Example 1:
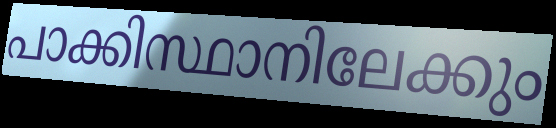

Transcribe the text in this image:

പാക്കിസ്ഥാനിലേക്കും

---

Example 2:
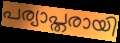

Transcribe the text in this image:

പര്യാപ്തരായി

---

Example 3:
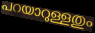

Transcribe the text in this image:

പറയാറുള്ളതും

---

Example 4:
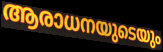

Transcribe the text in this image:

ആരാധനയുടെയും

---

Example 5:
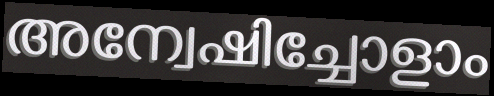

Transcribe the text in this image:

അന്വേഷിച്ചോളാം